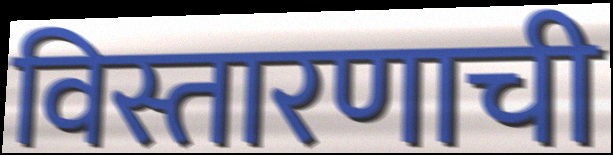
विस्तारणाची